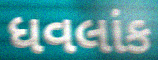
ધવલાંક